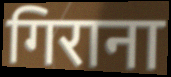
गिराना